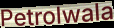
Petrolwala